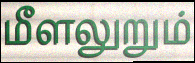
மீளலுறும்